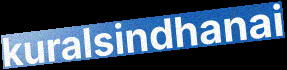
kuralsindhanai